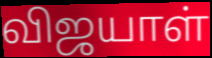
விஜயாள்